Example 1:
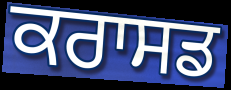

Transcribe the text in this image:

ਕਰਾਸਡ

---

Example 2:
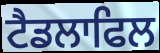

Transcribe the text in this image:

ਟੈਡਲਾਫਿਲ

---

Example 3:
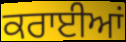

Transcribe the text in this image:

ਕਰਾਈਆਂ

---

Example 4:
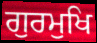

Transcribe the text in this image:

ਗੁਰਮੁਖਿ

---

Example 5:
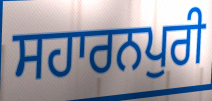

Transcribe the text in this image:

ਸਹਾਰਨਪੁਰੀ